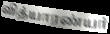
வித்யாரண்யர்